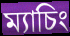
ম্যাচিং